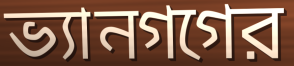
ভ্যানগগের